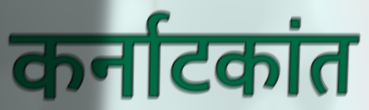
कर्नाटकांत